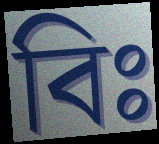
বিঃ